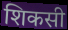
शिकसी